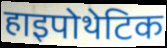
हाइपोथेटिक